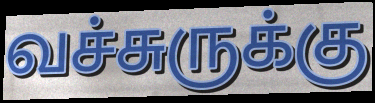
வச்சுருக்கு